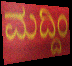
ಮದ್ದಿಂ